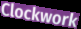
Clockwork